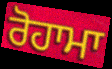
ਰੋਹਾਮਾ